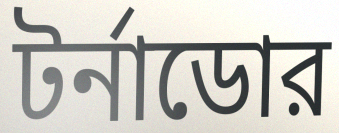
টর্নাডোর